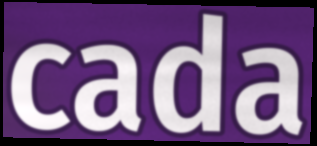
cada